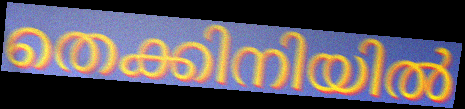
തെക്കിനിയിൽ